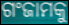
ଗଂଜାମକୁ